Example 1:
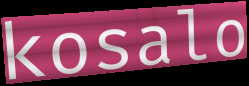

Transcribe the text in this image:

kosalo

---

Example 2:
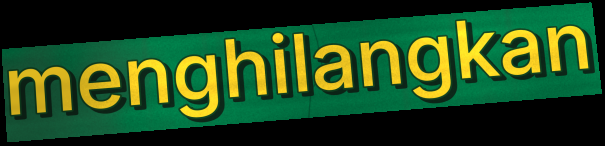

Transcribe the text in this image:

menghilangkan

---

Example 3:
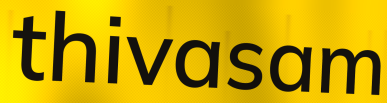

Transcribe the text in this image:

thivasam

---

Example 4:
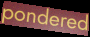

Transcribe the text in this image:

pondered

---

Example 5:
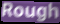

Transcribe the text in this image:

Rough